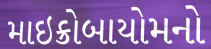
માઇક્રોબાયોમનો